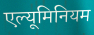
एल्यूमिनियम